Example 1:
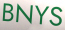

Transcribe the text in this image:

BNYS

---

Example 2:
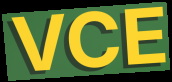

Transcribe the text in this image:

VCE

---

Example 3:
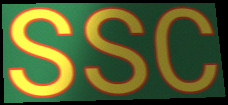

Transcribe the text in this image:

SSC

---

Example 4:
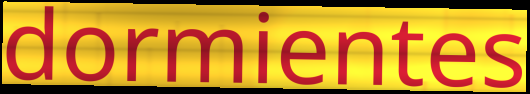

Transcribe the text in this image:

dormientes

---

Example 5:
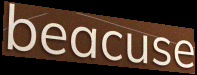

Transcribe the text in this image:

beacuse